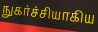
நுகர்ச்சியாகிய